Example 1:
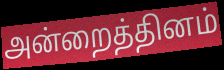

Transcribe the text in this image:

அன்றைத்தினம்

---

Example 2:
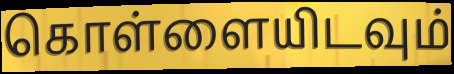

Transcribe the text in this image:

கொள்ளையிடவும்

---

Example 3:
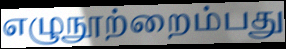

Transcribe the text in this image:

எழுநூற்றைம்பது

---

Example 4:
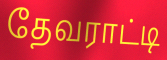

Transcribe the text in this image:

தேவராட்டி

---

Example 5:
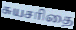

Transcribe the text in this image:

சுயசரிதை